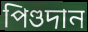
পিণ্ডদান